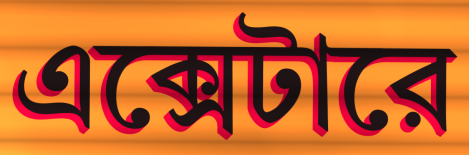
এক্সেটারে